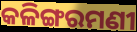
କଳିଙ୍ଗରମଣୀ